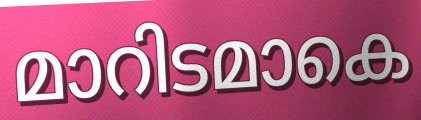
മാറിടമാകെ